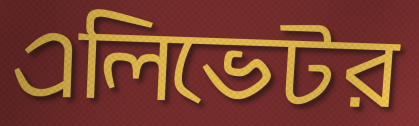
এলিভেটর